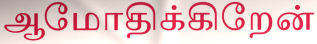
ஆமோதிக்கிறேன்